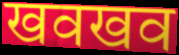
खवखव